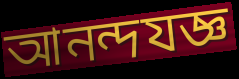
আনন্দযজ্ঞ